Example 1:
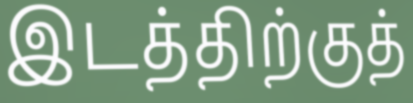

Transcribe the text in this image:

இடத்திற்குத்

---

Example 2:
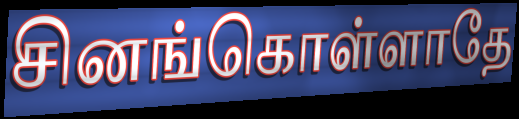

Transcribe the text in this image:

சினங்கொள்ளாதே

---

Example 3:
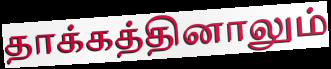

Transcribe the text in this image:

தாக்கத்தினாலும்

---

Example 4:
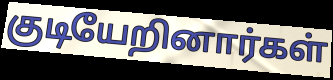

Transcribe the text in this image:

குடியேறினார்கள்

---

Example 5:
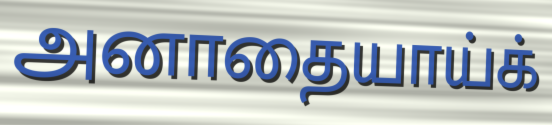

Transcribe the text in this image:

அனாதையாய்க்